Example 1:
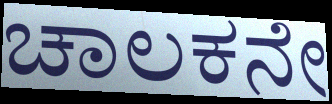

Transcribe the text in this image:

ಚಾಲಕನೇ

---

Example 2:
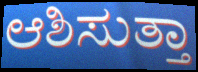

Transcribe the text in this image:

ಆಶಿಸುತ್ತಾ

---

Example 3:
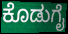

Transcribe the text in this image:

ಕೊಡುಗೈ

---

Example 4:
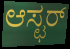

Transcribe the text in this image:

ಆಸ್ಟರ್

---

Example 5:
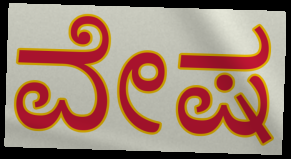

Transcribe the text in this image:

ವೇಷ